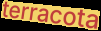
terracota